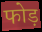
फोड़